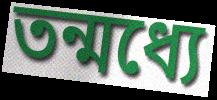
তন্মধ্যে